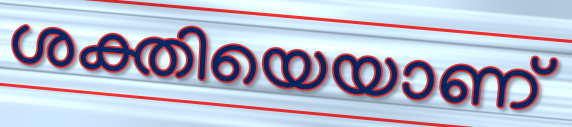
ശക്തിയെയാണ്